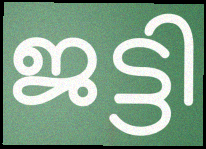
ജട്ടി